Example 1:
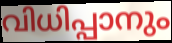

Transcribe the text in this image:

വിധിപ്പാനും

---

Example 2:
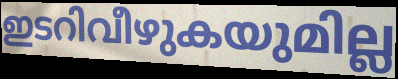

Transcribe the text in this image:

ഇടറിവീഴുകയുമില്ല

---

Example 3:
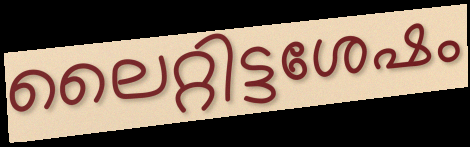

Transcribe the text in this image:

ലൈറ്റിട്ടശേഷം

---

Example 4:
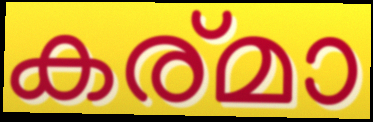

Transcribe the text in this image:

കര്മാ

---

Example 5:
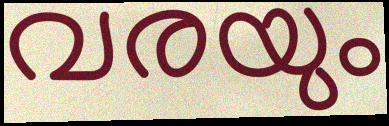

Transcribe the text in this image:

വരയും